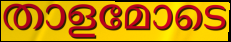
താളമോടെ